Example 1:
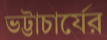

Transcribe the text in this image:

ভট্টাচার্যের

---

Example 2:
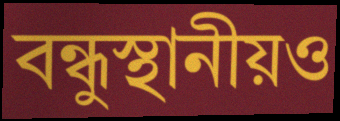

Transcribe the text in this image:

বন্ধুস্থানীয়ও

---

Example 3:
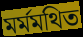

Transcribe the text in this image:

মর্মমথিত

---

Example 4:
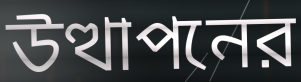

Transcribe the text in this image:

উত্থাপনের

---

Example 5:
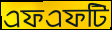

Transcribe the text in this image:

এফএফটি